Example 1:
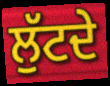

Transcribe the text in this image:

ਲੁੱਟਦੇ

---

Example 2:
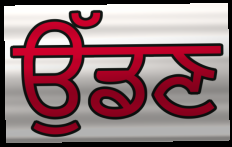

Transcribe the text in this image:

ਉੱਡਣ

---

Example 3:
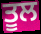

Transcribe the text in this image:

ਤੂਲ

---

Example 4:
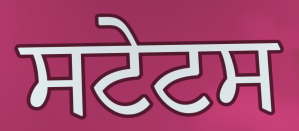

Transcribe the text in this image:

ਸਟੇਟਸ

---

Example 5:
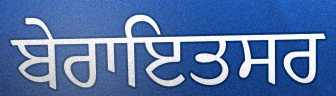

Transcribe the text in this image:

ਬੇਰਾਇਤਸਰ